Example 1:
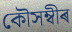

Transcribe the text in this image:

কৌসম্বীৰ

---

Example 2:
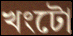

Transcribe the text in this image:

খংটো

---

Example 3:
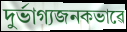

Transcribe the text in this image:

দুৰ্ভাগ্যজনকভাৱে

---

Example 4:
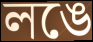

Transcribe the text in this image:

লঙে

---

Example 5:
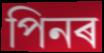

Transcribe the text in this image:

পিনৰ